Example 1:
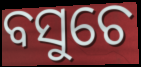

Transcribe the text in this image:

ବସୁଚେ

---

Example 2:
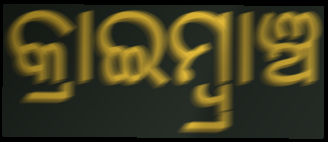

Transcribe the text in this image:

କ୍ରାଇମ୍ବ୍ରାଞ୍ଚ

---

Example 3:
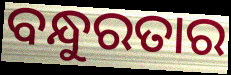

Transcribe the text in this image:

ବନ୍ଧୁରତାର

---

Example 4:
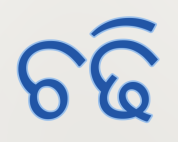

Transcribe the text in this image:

ଚଢି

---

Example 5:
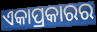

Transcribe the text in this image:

ଏକାପ୍ରକାରର